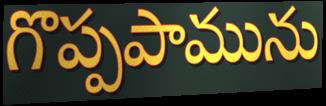
గొప్పపామును